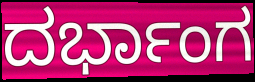
ದರ್ಭಾಂಗ